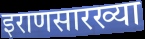
इराणसारख्या